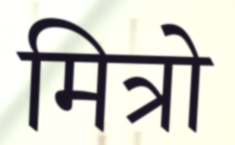
मित्रो